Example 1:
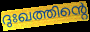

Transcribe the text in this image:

ദുഃഖത്തിന്റെ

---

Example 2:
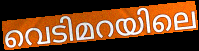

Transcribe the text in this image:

വെടിമറയിലെ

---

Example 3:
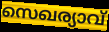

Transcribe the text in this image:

സെഖര്യാവ്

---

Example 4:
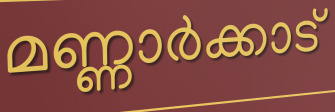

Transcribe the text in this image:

മണ്ണാർക്കാട്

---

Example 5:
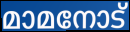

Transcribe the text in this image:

മാമനോട്